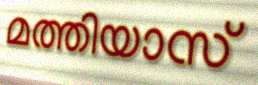
മത്തിയാസ്